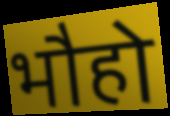
भौहो